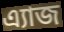
এ্যাজ